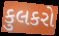
કુલકરો